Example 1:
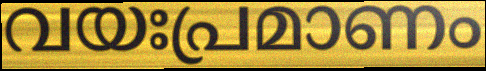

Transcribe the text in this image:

വയഃപ്രമാണം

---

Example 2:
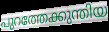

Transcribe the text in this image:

പുറത്തേക്കുന്തിയ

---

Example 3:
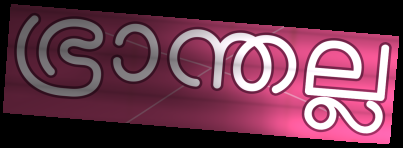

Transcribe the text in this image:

ഭ്രാന്തല്ല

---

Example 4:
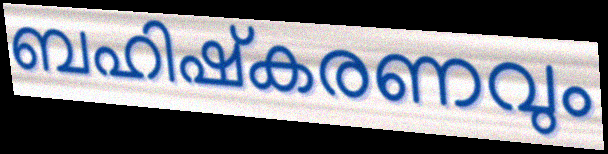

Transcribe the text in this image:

ബഹിഷ്കരണവും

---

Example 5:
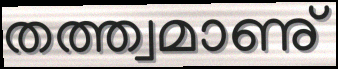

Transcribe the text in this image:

തത്ത്വമാണു്